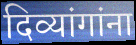
दिव्यांगांना